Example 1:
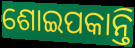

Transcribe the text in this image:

ଶୋଇପକାନ୍ତି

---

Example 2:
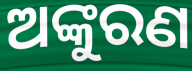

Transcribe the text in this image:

ଅଙ୍କୁରଣ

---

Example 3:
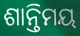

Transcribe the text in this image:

ଶାନ୍ତିମୟ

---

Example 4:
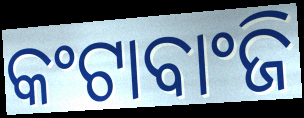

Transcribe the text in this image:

କଂଟାବାଂଜି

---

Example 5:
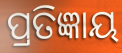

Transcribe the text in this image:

ପ୍ରତିଜ୍ଞାୟ